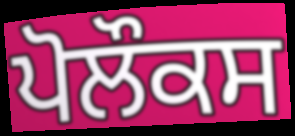
ਪੋਲੌਕਸ